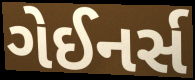
ગેઈનર્સ